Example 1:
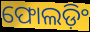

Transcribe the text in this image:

ଫୋଲଡ଼ିଂ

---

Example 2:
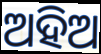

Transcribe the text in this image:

ଅହିଅ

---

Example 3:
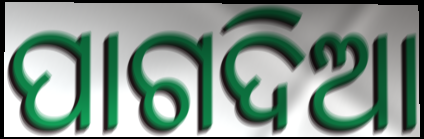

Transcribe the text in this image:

ପାଗଦିଆ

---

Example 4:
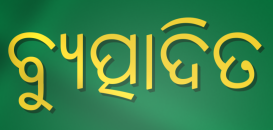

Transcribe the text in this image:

ବ୍ୟୁତ୍ପାଦିତ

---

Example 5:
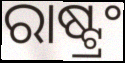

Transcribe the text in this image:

ରାଷ୍ଟ୍ରଂ